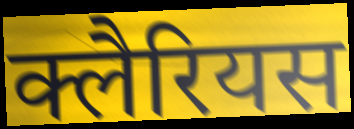
क्लैरियस